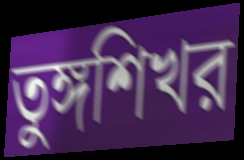
তুঙ্গশিখর